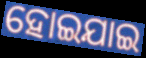
ହୋଇଯାଇ